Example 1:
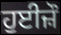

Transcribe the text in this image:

ਹੁਈਜ਼ੌ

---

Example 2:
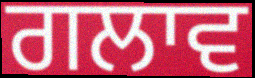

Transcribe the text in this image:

ਗਲਾਵ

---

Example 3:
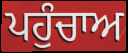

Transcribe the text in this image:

ਪਹੁੰਚਾਅ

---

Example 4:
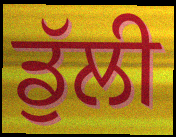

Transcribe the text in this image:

ਡੁੱਲੀ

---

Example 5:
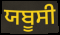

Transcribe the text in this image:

ਯਬੂਸੀ